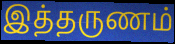
இத்தருணம்